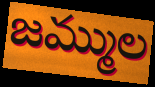
జమ్ముల